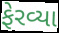
ફેરવ્યા